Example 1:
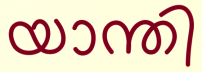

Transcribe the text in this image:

യാന്തി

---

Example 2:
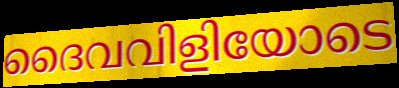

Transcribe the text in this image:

ദൈവവിളിയോടെ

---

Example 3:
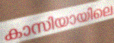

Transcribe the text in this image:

കാസിയായിലെ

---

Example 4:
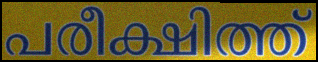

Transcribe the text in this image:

പരീക്ഷിത്ത്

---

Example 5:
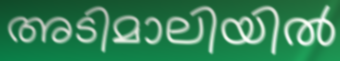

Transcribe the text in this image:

അടിമാലിയിൽ